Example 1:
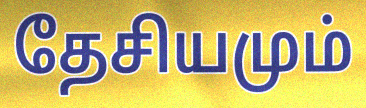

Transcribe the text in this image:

தேசியமும்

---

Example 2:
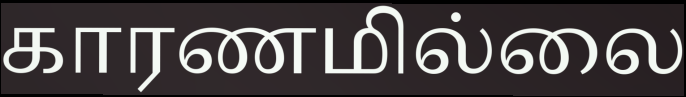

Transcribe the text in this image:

காரணமில்லை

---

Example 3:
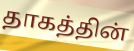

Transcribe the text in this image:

தாகத்தின்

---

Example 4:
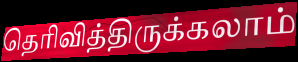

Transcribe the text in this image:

தெரிவித்திருக்கலாம்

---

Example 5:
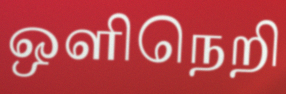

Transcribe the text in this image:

ஒளிநெறி